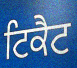
ਟਿਕੈਟ